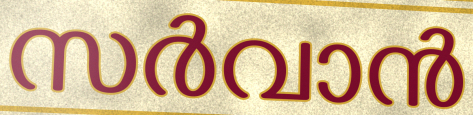
സർവാൻ